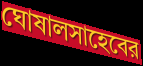
ঘোষালসাহেবের